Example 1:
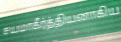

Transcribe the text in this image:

சயமாகீர்த்தியனாகிய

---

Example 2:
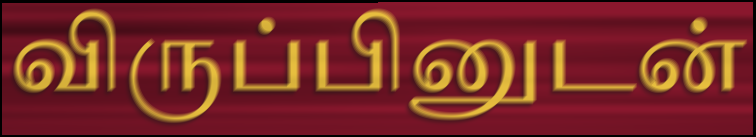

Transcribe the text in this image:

விருப்பினுடன்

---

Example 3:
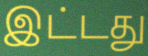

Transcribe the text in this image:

இட்டது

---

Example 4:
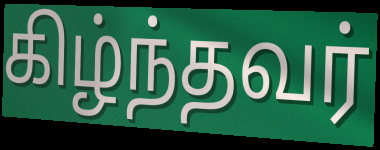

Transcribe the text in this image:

கிழ்ந்தவர்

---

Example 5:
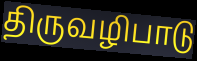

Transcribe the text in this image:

திருவழிபாடு